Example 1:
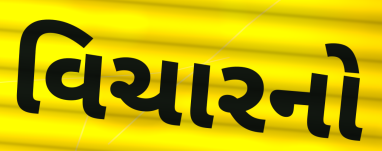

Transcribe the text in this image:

વિચારનો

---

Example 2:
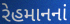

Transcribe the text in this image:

રેહમાનનાં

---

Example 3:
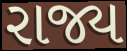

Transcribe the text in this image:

રાજ્ય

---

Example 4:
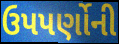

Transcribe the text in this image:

ઉપપર્ણોની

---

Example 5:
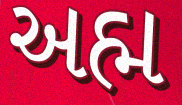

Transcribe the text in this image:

અહ્મ